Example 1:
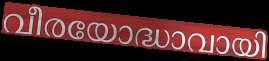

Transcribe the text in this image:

വീരയോദ്ധാവായി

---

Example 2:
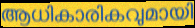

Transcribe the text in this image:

ആധികാരികവുമായി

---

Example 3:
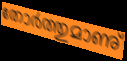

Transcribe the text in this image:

തോർത്തുമാണു്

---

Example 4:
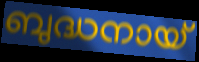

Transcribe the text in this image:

ബുദ്ധനായ്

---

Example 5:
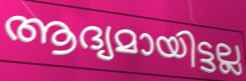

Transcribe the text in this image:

ആദ്യമായിട്ടല്ല